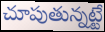
చూపుతున్నట్టే